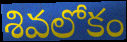
శివలోకం